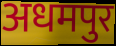
अधमपुर